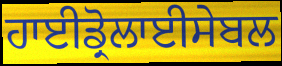
ਹਾਈਡ੍ਰੋਲਾਈਸੇਬਲ